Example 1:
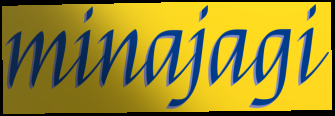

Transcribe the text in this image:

minajagi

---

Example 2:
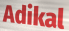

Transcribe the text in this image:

Adikal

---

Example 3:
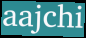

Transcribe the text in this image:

aajchi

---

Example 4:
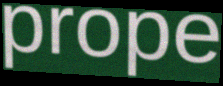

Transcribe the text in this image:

prope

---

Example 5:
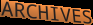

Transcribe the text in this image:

ARCHIVES